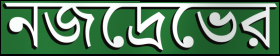
নজদ্রেভের